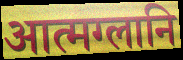
आत्मग्लानि